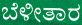
ಬೆಳೀತಾರ